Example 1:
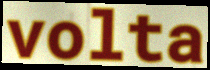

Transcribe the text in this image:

volta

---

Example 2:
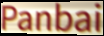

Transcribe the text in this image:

Panbai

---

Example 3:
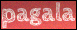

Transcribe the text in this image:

pagala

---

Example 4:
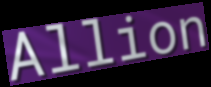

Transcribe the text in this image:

Allion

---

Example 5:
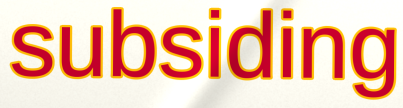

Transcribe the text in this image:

subsiding